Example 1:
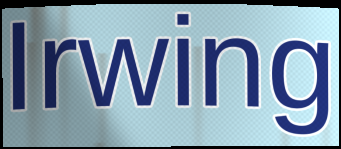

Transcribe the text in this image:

Irwing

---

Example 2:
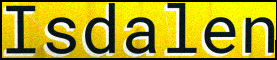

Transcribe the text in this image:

Isdalen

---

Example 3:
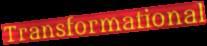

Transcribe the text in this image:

Transformational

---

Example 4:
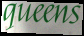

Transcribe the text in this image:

queens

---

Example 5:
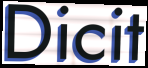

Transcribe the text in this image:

Dicit